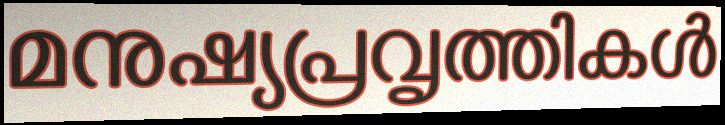
മനുഷ്യപ്രവൃത്തികൾ